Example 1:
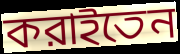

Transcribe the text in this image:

করাইতেন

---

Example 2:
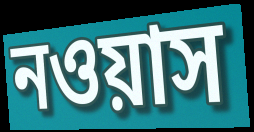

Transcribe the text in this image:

নওয়াস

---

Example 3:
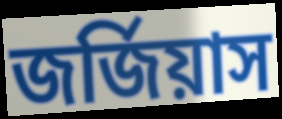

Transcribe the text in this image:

জর্জিয়াস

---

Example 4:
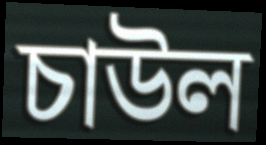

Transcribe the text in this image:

চাউল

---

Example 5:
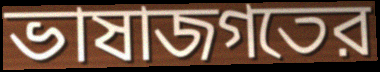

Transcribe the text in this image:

ভাষাজগতের